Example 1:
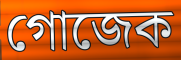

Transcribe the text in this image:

গোজেক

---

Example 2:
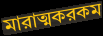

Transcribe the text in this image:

মারাত্মকরকম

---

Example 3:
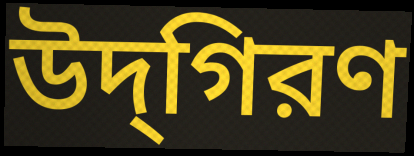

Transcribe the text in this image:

উদ্‌গিরণ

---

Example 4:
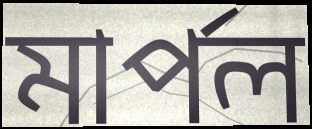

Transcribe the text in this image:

মার্পল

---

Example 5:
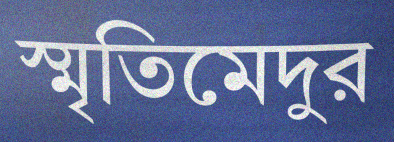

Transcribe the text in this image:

স্মৃতিমেদুর